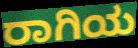
ರಾಗಿಯ